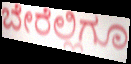
ಬೇರೆಲ್ಲಿಗೂ